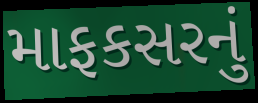
માફકસરનું